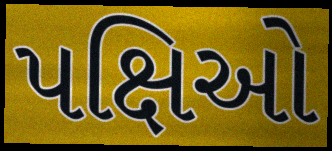
પક્ષિઓ